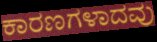
ಕಾರಣಗಳಾದವು